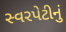
સ્વરપેટીનું